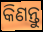
କିଣନ୍ତୁ